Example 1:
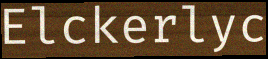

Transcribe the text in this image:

Elckerlyc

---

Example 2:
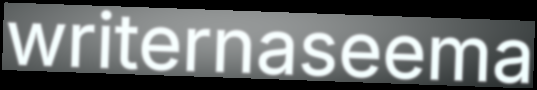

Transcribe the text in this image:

writernaseema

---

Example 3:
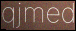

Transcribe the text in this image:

qjmed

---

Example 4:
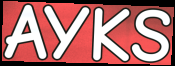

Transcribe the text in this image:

AYKS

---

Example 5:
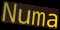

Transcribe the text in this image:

Numa